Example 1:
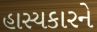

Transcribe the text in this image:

હાસ્યકારને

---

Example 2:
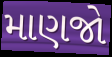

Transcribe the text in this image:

માણજો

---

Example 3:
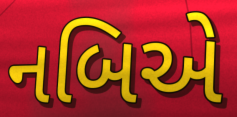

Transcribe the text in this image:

નબિએ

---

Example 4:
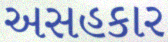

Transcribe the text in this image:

અસહકાર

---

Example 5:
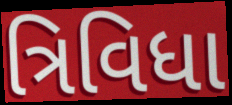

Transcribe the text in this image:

ત્રિવિધા